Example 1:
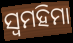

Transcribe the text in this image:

ସ୍ୱମହିମା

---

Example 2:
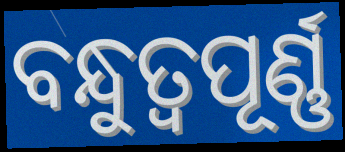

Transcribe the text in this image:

ବନ୍ଧୁତ୍ଵପୂର୍ଣ୍ଣ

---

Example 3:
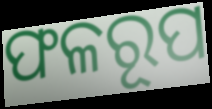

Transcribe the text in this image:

ଫଳରୂପ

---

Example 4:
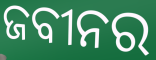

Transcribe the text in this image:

ଜବୀନର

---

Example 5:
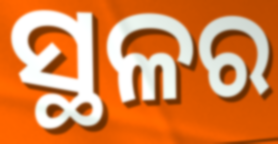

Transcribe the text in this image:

ସ୍ଥଳର